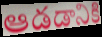
ఆడడానికి